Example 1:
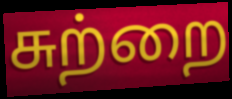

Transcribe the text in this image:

சுற்றை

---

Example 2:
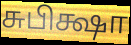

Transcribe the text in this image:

சுபிக்ஷா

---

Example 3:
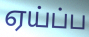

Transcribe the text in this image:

ஏய்ப்ப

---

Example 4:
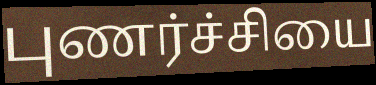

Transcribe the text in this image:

புணர்ச்சியை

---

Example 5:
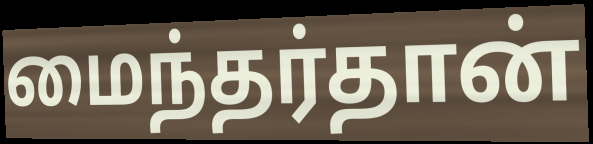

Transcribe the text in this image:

மைந்தர்தான்